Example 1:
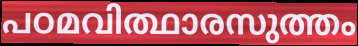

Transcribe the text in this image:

പഠമവിത്ഥാരസുത്തം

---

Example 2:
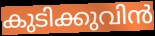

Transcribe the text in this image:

കുടിക്കുവിൻ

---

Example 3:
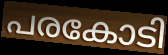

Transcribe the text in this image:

പരകോടി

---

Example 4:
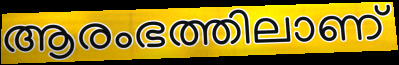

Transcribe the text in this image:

ആരംഭത്തിലാണ്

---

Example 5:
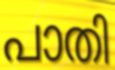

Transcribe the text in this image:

പാതി